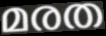
മരത